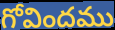
గోవిందము